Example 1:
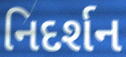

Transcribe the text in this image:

નિદર્શન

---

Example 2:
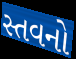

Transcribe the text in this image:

સ્તવનો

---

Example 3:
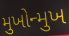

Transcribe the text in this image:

મુખોન્મુખ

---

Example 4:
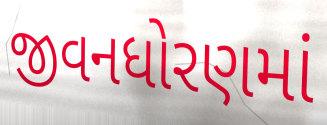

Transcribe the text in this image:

જીવનધોરણમાં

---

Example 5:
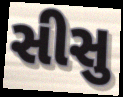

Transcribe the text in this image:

સીસુ